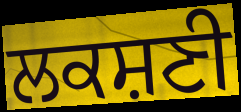
ਲਕਸ਼ਣੀ